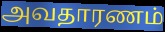
அவதாரணம்